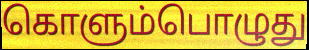
கொளும்பொழுது